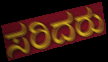
ಸರಿದರು